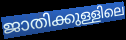
ജാതിക്കുള്ളിലെ